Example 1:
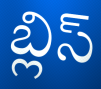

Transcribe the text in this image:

బ్లిస్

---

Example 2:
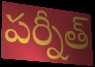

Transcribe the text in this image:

పర్నీత్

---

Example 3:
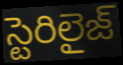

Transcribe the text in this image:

స్టెరిలైజ్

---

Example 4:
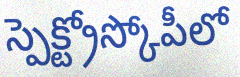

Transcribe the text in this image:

స్పెక్ట్రోస్కోపీలో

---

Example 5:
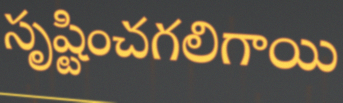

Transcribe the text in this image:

సృష్టించగలిగాయి